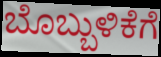
ಬೊಬ್ಬುಳಿಕೆಗೆ